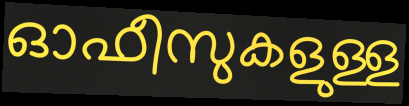
ഓഫീസുകളുള്ള